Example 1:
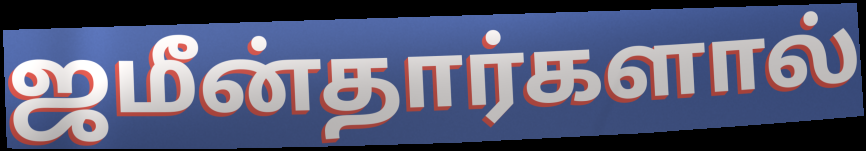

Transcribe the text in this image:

ஜமீன்தார்களால்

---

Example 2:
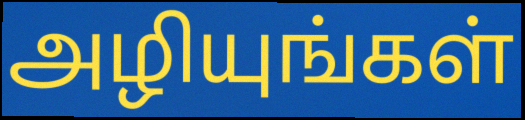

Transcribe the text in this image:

அழியுங்கள்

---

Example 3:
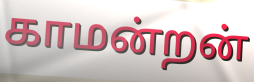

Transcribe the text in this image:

காமன்றன்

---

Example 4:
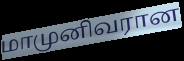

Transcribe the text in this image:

மாமுனிவரான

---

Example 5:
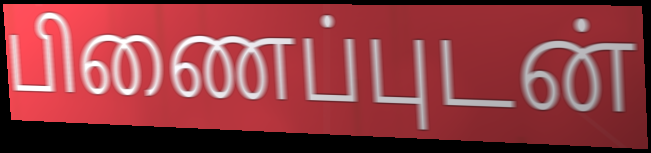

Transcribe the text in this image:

பிணைப்புடன்